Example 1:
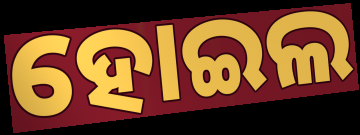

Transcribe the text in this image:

ହୋଇଲ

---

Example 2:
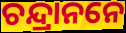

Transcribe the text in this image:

ଚନ୍ଦ୍ରାନନେ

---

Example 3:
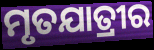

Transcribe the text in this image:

ମୃତଯାତ୍ରୀର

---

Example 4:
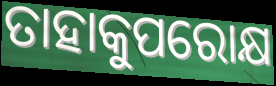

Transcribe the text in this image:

ତାହାକୁପରୋକ୍ଷ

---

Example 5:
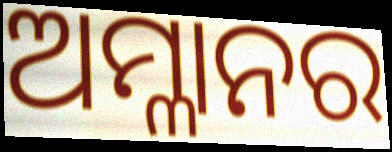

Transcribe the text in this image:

ଅମ୍ଳାନର